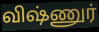
விஷ்ணுர்